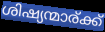
ശിഷ്യന്മാര്ക്ക്